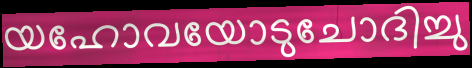
യഹോവയോടുചോദിച്ചു